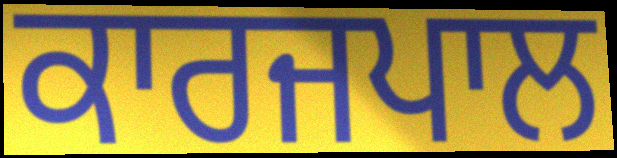
ਕਾਰਜਪਾਲ